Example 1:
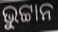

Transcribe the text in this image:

ଭୁଟ୍ଟାନ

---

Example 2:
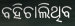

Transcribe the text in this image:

ବହିଚାଲିଥିବ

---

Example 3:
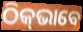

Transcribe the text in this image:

ଠିକ୍‌ଭାବେ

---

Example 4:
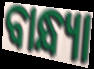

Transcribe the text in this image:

ବାନ୍ଧ୍ୟା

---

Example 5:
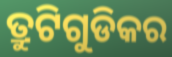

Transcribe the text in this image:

ତ୍ରୁଟିଗୁଡିକର